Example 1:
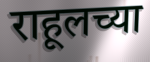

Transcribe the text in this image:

राहूलच्या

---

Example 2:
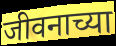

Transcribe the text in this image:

जीवनाच्या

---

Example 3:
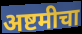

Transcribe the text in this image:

अष्टमीचा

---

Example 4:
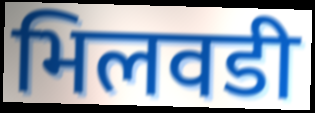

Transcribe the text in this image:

भिलवडी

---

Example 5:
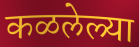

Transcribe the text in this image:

कळलेल्या